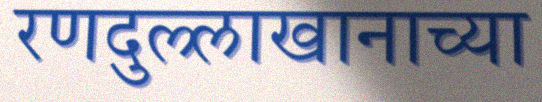
रणदुल्लाखानाच्या